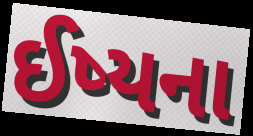
ઈષ્યના